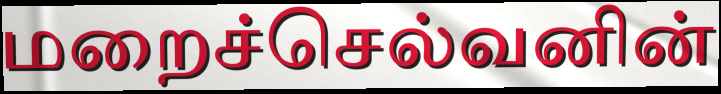
மறைச்செல்வனின்